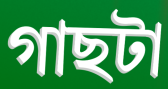
গাছটা